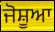
ਜੋਸ਼ੂਆ